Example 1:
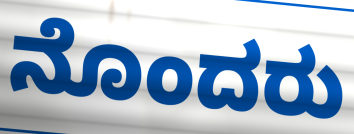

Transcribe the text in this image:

ನೊಂದರು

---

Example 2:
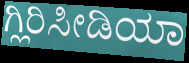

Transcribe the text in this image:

ಗ್ಲಿರಿಸೀಡಿಯಾ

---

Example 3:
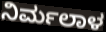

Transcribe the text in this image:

ನಿರ್ಮಲಾಳ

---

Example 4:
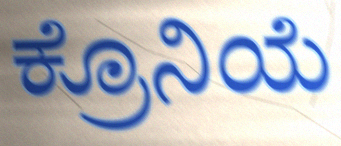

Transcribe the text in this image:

ಕ್ರೊನಿಯೆ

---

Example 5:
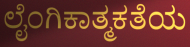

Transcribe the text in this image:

ಲೈಂಗಿಕಾತ್ಮಕತೆಯ